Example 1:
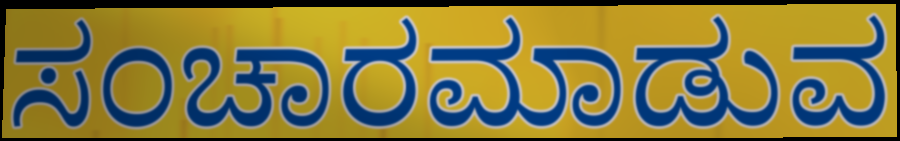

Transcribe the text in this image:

ಸಂಚಾರಮಾಡುವ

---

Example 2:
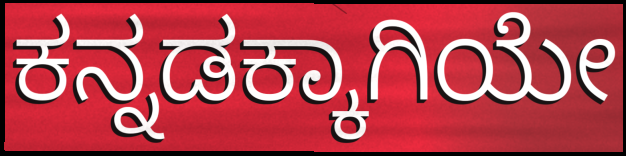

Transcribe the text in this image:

ಕನ್ನಡಕ್ಕಾಗಿಯೇ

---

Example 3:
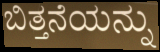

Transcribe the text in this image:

ಬಿತ್ತನೆಯನ್ನು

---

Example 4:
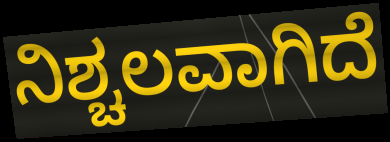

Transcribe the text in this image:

ನಿಶ್ಚಲವಾಗಿದೆ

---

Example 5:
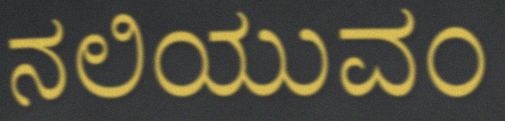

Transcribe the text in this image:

ನಲಿಯುವಂ